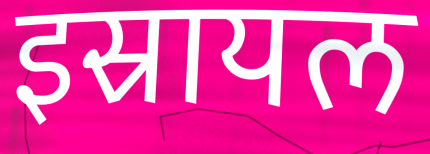
इस्रायल